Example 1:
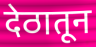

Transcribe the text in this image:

देठातून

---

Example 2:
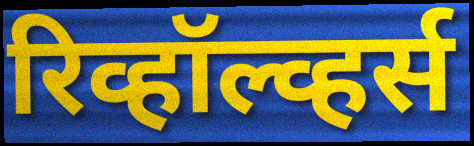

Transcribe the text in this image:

रिव्हॉल्व्हर्स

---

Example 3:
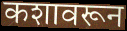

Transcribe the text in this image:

कशावरून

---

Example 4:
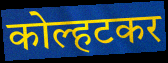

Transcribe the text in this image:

कोल्हटकर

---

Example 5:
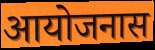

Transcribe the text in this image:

आयोजनास